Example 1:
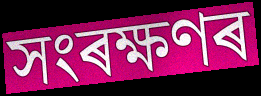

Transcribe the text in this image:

সংৰক্ষণৰ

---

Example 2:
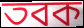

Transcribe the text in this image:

তবক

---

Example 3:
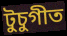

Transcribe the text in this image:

টুচুগীত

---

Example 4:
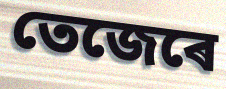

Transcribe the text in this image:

তেজেৰে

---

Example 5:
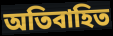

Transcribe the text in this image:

অতিবাহিত